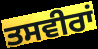
ਤਸਵੀਰਾਂ